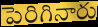
పెరిగినారు